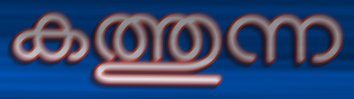
കത്തുന്ന